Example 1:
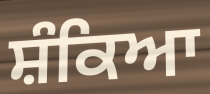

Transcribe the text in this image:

ਸ਼ੰਕਿਆ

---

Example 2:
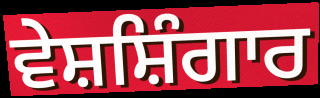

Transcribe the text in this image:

ਵੇਸ਼ਸ਼ਿੰਗਾਰ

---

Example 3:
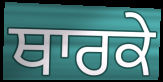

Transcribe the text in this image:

ਥਾਰਕੇ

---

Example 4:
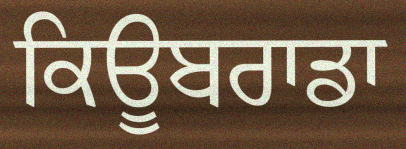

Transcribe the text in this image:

ਕਿਊਬਰਾਡਾ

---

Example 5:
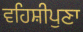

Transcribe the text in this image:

ਵਹਿਸ਼ੀਪੁਣਾ